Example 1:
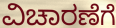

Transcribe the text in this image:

ವಿಚಾರಣೆಗೆ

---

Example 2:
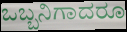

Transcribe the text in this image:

ಒಬ್ಬನಿಗಾದರೂ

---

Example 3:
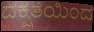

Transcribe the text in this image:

ದಕ್ಷತೆಯಿಂದ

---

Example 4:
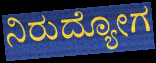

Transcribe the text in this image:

ನಿರುದ್ಯೋಗ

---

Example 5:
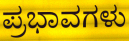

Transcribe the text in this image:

ಪ್ರಭಾವಗಳು